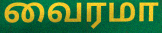
வைரமா